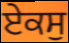
ਏਕਸੁ